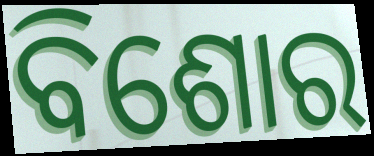
ବିଶୋର